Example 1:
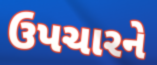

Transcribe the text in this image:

ઉપચારને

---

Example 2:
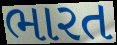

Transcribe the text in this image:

ભારત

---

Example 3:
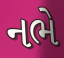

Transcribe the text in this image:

નભે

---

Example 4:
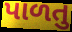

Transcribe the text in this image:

પાળતુ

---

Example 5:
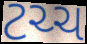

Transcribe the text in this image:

ટચ્ચ